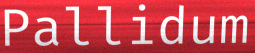
Pallidum